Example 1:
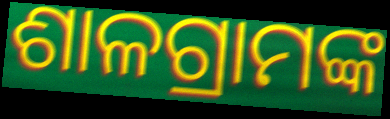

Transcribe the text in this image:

ଶାଳଗ୍ରାମଙ୍କ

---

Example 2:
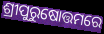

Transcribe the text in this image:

ଶ୍ରୀପୁରୁଷୋତ୍ତମରେ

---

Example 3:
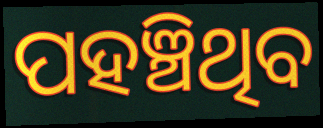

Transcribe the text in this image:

ପହଞ୍ଚିଥିବ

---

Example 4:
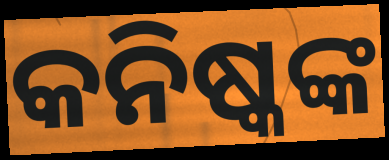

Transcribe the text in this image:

କନିଷ୍କଙ୍କ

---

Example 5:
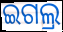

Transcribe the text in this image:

ଇଗଲ୍ର